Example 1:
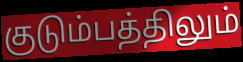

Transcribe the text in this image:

குடும்பத்திலும்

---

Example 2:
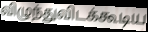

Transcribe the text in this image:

விழுந்துவிடக்கூடிய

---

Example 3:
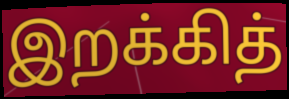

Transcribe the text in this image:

இறக்கித்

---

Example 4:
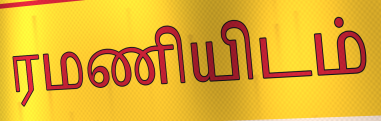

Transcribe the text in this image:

ரமணியிடம்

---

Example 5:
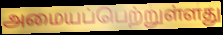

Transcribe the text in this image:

அமையப்பெற்றுள்ளது